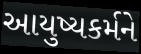
આયુષ્યકર્મને